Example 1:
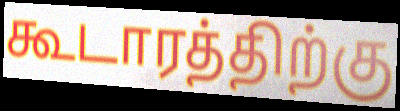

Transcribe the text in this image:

கூடாரத்திற்கு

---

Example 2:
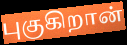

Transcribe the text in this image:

புகுகிறான்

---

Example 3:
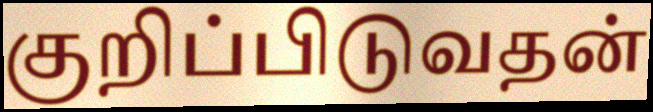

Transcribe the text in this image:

குறிப்பிடுவதன்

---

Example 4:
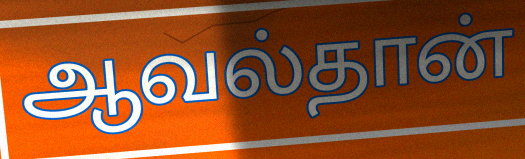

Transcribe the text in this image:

ஆவல்தான்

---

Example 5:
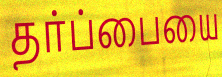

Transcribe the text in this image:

தர்ப்பையை